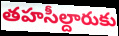
తహసీల్దారుకు